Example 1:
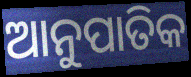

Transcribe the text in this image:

ଆନୁପାତିକ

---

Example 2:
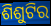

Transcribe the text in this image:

ଶିଶୁଟିର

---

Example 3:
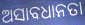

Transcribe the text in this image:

ଅସାବଧାନତା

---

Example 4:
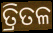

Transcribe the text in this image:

ତ୍ରିତଳ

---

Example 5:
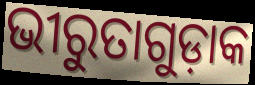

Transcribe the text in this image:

ଭୀରୁତାଗୁଡ଼ାକ